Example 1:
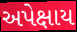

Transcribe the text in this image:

અપેક્ષાય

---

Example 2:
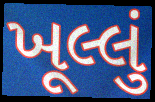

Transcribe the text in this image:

ખૂલ્લું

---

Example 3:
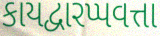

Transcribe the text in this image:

કાયદ્વારપ્પવત્તા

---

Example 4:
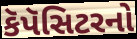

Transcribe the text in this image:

કૅપૅસિટરનો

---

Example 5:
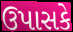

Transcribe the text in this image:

ઉપાસકે